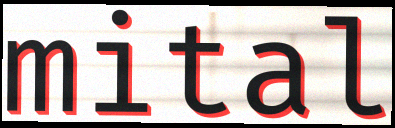
mital